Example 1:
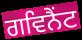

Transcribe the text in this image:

ਗਵਿਨੈਂਟ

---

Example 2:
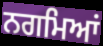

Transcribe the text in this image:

ਨਗਮਿਆਂ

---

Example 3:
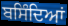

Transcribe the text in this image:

ਬਸਿੰਦਿਆਂ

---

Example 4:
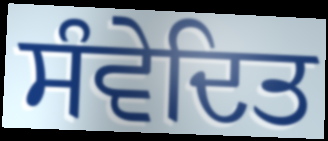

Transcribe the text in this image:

ਸੰਵੇਦਿਤ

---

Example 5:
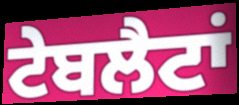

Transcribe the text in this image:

ਟੇਬਲੈਟਾਂ